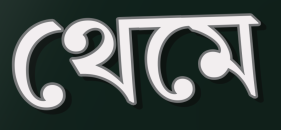
থেমে